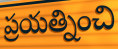
ప్రయత్నించి